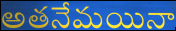
అతనేమయినా